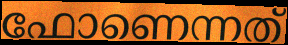
ഫോണെന്നത്